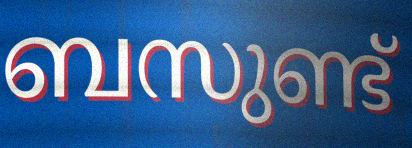
ബസുണ്ട്